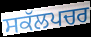
ਸਕੱਲਪਚਰ